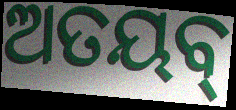
ଅତୟବ୍